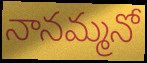
నానమ్మనో